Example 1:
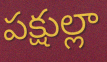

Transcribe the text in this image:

పక్షుల్లా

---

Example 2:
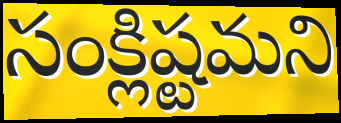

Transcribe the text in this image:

సంక్లిష్టమని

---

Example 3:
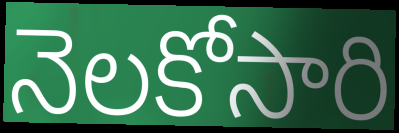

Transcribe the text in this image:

నెలకోసారి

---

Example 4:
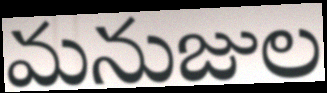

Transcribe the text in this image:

మనుజుల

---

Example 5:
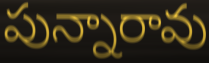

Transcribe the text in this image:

పున్నారావు